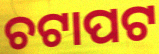
ଚଟାପଟ